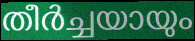
തീർച്ചയായും